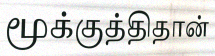
மூக்குத்திதான்